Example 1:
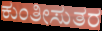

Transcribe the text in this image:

ಕುಂತೀಸುತರ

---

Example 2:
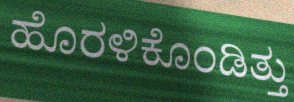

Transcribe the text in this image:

ಹೊರಳಿಕೊಂಡಿತ್ತು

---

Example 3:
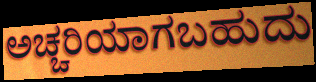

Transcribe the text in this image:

ಅಚ್ಚರಿಯಾಗಬಹುದು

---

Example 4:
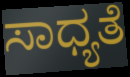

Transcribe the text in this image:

ಸಾಧ್ಯತೆ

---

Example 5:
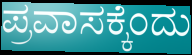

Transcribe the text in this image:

ಪ್ರವಾಸಕ್ಕೆಂದು